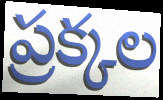
ప్రక్కల